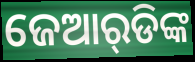
ଜେଆର୍‌ଡିଙ୍କ